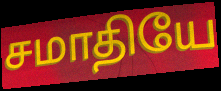
சமாதியே